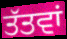
ਤੱਤਵਾਂ